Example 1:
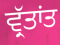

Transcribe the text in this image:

ਵ੍ਰੱਤਾਂਤ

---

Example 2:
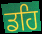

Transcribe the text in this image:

ਡਹਿ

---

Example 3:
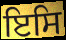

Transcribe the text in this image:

ਇਸਿ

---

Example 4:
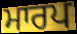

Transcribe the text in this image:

ਮਾਰਪ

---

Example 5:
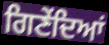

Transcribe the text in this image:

ਗਿਣੇਂਦਿਆਂ